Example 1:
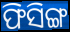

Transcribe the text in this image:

ଫିସିଙ୍ଗ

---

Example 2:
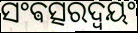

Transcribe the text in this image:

ସଂଵତ୍ସରଦ୍ଵୟଂ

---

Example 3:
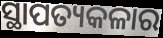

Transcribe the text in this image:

ସ୍ଥାପତ୍ୟକଳାର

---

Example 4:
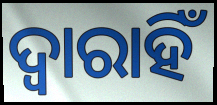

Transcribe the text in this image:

ଦ୍ୱାରାହିଁ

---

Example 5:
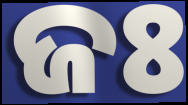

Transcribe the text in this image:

ଜଃ